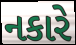
નકારે